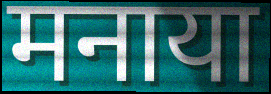
मनाया